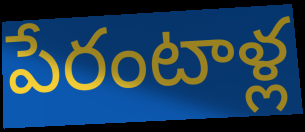
పేరంటాళ్ల